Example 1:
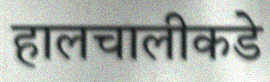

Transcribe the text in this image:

हालचालीकडे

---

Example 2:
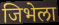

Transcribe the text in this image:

जिभेला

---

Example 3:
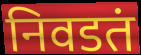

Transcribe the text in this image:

निवडतं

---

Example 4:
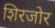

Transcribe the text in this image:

शिरजोर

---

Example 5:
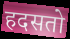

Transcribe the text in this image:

हदसतो